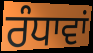
ਰੰਧਾਵਾਂ